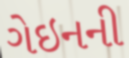
ગેઇનની